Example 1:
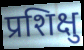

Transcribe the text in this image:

प्रशिक्षु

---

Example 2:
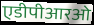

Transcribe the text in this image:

एडीपीआरओ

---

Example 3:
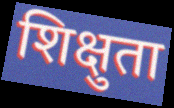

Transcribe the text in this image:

शिक्षुता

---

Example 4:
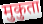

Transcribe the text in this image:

मुकुता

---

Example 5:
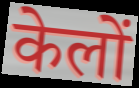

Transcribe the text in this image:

केलों